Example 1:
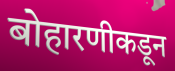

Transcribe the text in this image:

बोहारणीकडून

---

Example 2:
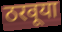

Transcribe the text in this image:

ठरवूया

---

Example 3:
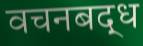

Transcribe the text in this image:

वचनबद्ध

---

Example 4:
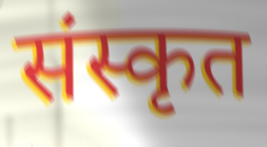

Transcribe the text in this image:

संस्कृत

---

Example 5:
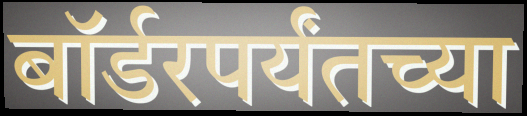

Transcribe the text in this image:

बॉर्डरपर्यंतच्या